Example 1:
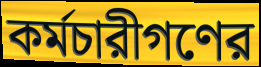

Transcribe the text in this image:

কর্মচারীগণের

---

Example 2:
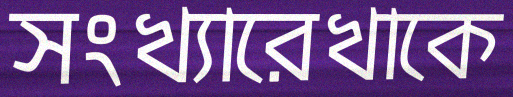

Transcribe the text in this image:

সংখ্যারেখাকে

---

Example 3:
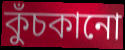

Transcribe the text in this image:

কুঁচকানো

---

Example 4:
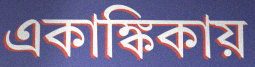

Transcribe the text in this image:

একাঙ্কিকায়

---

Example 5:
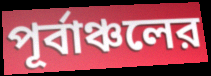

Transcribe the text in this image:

পূর্বাঞ্চলের